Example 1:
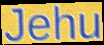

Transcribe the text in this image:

Jehu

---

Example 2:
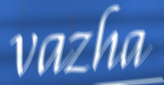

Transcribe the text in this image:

vazha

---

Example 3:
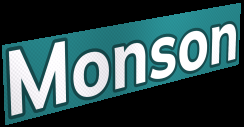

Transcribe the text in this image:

Monson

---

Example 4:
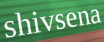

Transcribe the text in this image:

shivsena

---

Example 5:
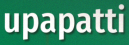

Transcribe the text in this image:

upapatti